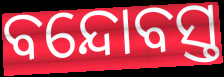
ବନ୍ଦୋବସ୍ତ